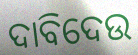
ଦାବିଦେଉ